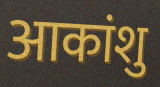
आकांशु